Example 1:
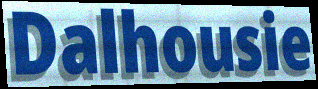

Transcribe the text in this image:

Dalhousie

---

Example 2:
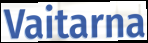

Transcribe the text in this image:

Vaitarna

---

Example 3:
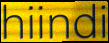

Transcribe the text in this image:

hiindi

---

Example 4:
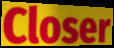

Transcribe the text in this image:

Closer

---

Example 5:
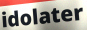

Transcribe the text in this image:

idolater